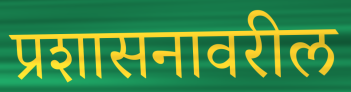
प्रशासनावरील